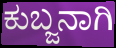
ಕುಬ್ಜನಾಗಿ